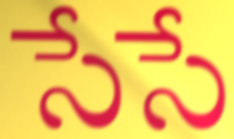
సేసే